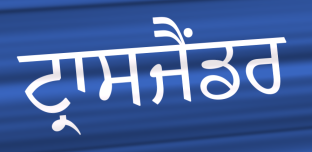
ਟ੍ਰਾਸਜੈਂਡਰ